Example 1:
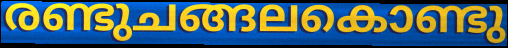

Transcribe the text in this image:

രണ്ടുചങ്ങലകൊണ്ടു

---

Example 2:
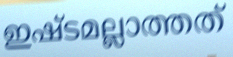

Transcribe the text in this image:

ഇഷ്ടമല്ലാത്തത്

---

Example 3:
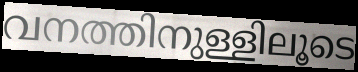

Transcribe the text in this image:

വനത്തിനുള്ളിലൂടെ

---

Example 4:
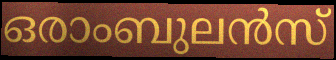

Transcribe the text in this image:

ഒരാംബുലൻസ്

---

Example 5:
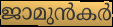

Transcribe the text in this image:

ജാമുൻകർ